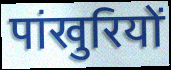
पांखुरियों